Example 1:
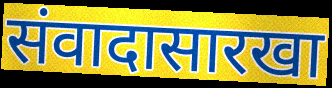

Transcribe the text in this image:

संवादासारखा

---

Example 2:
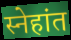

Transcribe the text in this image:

स्नेहांत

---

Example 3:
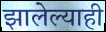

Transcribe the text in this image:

झालेल्याही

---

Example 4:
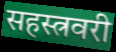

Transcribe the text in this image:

सहस्त्रवरी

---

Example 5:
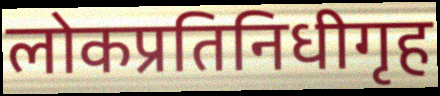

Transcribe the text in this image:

लोकप्रतिनिधीगृह